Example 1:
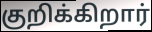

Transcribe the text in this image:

குறிக்கிறார்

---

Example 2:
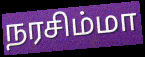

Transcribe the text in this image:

நரசிம்மா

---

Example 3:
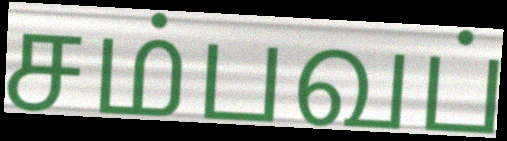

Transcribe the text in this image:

சம்பவப்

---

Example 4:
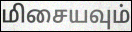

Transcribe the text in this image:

மிசையவும்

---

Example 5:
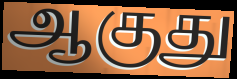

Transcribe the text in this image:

ஆகுது